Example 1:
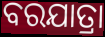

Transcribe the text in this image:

ବରଯାତ୍ରା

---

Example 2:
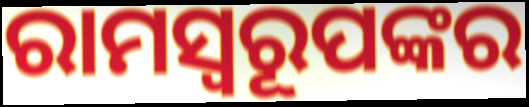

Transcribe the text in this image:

ରାମସ୍ୱରୂପଙ୍କର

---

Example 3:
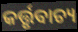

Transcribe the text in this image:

କର୍ତ୍ତୃବାଚ୍ୟ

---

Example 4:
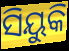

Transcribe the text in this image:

ସିୟୁକି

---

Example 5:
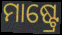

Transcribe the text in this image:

ମାଷ୍ଟ୍ରେ